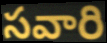
సవారి